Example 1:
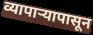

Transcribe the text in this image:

व्यापाऱ्यापासून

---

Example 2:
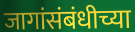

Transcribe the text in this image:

जागांसंबंधीच्या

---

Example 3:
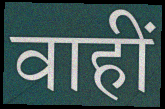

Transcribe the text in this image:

वाहीं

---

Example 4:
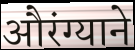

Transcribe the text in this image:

औरंग्याने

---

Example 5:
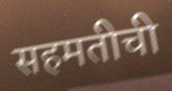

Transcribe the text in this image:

सहमतीची